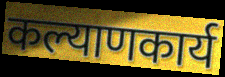
कल्याणकार्य